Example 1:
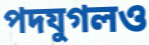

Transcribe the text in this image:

পদযুগলও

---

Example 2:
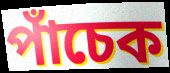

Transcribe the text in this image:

পাঁচেক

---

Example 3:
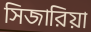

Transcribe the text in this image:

সিজারিয়া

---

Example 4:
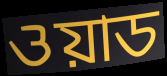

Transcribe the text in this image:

ওয়াড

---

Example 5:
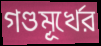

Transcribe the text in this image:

গণ্ডমূর্খের